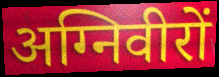
अग्निवीरों